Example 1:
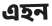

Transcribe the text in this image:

এহন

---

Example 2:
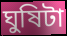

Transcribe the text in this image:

ঘুষিটা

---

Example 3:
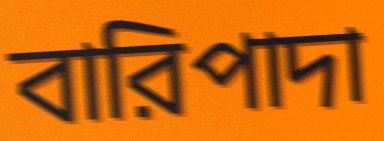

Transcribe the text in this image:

বারিপাদা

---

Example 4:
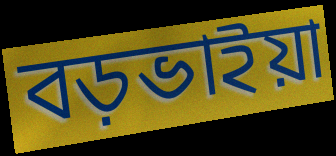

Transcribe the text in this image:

বড়ভাইয়া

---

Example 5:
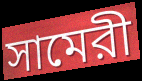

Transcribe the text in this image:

সামেরী